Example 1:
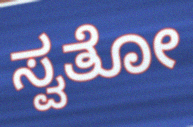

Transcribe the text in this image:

ಸ್ವತೋ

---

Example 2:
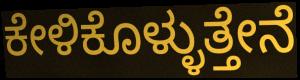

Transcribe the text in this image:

ಕೇಳಿಕೊಳ್ಳುತ್ತೇನೆ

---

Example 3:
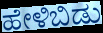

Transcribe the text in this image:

ಹೇಳಿಬಿಡು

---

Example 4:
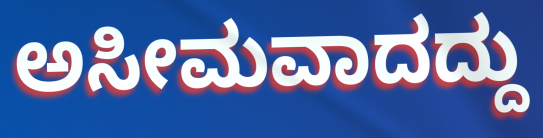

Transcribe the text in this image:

ಅಸೀಮವಾದದ್ದು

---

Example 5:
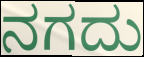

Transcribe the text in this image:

ನಗದು